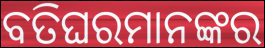
ବତିଘରମାନଙ୍କର